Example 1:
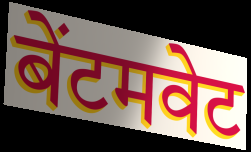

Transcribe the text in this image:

बेंटमवेट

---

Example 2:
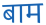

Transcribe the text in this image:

बाम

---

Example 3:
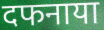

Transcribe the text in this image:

दफनाया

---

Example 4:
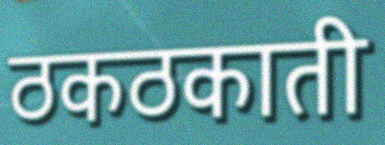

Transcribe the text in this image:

ठकठकाती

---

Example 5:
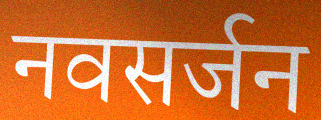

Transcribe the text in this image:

नवसर्जन